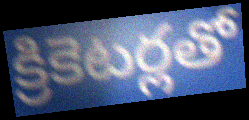
క్రికెటర్లతో